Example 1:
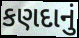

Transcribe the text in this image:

કણદાનું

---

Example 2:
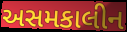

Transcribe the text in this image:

અસમકાલીન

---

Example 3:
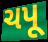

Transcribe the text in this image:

ચપૂ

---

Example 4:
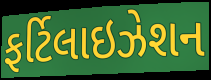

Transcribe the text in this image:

ફર્ટિલાઇઝેશન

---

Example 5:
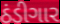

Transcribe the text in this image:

ઠંડીગાર